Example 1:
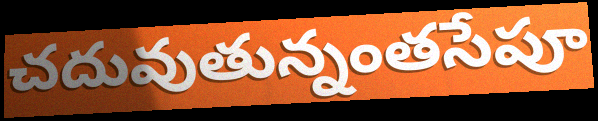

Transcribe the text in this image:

చదువుతున్నంతసేపూ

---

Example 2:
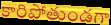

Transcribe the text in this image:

కారిపోతుండగా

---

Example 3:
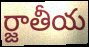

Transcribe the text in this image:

ర్జాతీయ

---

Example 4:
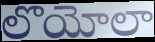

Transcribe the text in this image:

లొయోలా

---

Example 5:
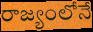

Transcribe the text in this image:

రాజ్యంలోనే